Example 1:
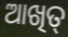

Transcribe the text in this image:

ଆଖିତ୍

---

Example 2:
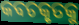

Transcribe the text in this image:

କବଚକୃତକୁ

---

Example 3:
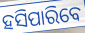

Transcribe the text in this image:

ହସିପାରିବେ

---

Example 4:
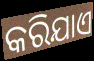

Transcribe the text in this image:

କରିଯାଏ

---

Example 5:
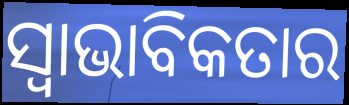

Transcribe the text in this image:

ସ୍ଵାଭାବିକତାର